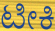
ಟೀಕಿ